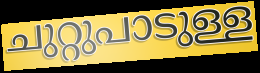
ചുറ്റുപാടുള്ള